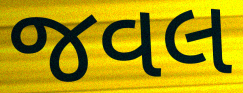
જવલ